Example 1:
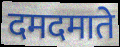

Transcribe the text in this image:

दमदमाते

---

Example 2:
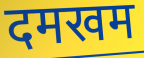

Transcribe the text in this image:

दमखम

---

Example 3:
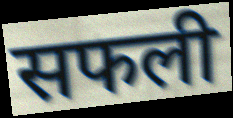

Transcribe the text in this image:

सफली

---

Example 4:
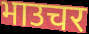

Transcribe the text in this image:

भाउचर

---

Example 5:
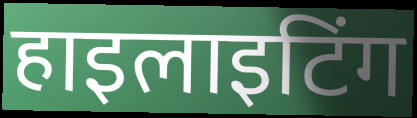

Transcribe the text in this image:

हाइलाइटिंग